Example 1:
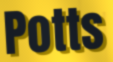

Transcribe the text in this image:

Potts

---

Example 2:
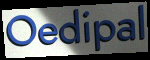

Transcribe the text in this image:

Oedipal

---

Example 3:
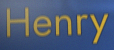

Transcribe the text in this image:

Henry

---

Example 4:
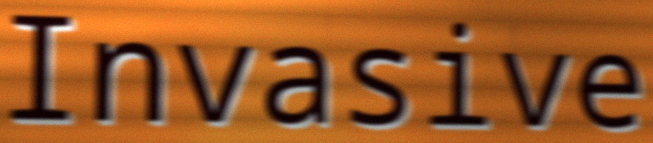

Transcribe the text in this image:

Invasive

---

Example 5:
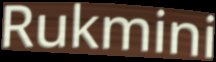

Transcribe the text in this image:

Rukmini